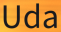
Uda